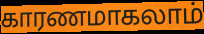
காரணமாகலாம்